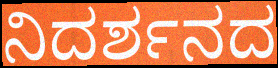
ನಿದರ್ಶನದ